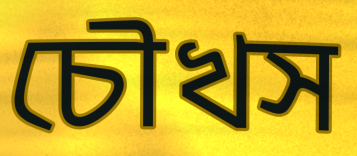
চৌখস